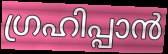
ഗ്രഹിപ്പാൻ